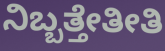
ನಿಬ್ಬತ್ತೇತೀತಿ